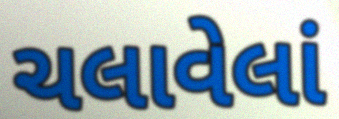
ચલાવેલાં